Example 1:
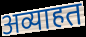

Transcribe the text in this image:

अव्याहत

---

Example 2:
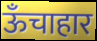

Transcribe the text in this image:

ऊँचाहार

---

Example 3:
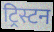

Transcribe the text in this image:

ट्रिस्टन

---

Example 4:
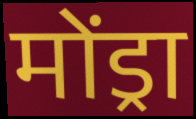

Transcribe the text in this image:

मोंड्रा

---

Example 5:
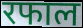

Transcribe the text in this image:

रफाल